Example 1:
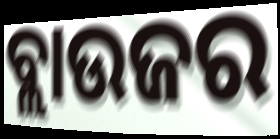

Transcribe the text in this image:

ବ୍ଲାଉଜର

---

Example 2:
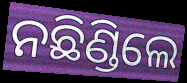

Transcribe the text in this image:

ନଛିଣ୍ଡିଲେ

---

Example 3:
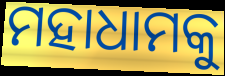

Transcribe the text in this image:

ମହାଧାମକୁ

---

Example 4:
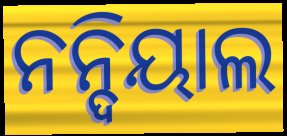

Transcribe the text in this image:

ନନ୍ଦିୟାଲ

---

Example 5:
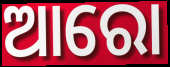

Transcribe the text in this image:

ଆରୋ